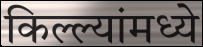
किल्ल्यांमध्ये